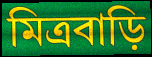
মিত্রবাড়ি